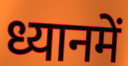
ध्यानमें